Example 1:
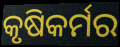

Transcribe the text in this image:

କୃଷିକର୍ମର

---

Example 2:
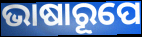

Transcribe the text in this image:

ଭାଷାରୂପେ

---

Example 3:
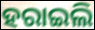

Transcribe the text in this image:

ହରାଇଲି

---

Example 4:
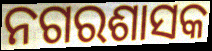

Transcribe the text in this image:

ନଗରଶାସକ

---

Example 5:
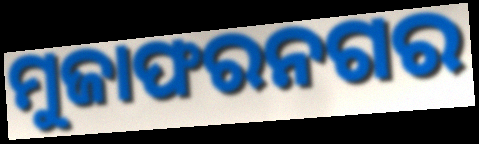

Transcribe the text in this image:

ମୁଜାଫରନଗର